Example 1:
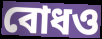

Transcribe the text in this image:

বোধও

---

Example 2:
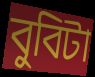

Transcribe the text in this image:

বুবিটা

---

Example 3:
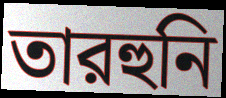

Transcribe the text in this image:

তারহুনি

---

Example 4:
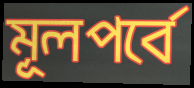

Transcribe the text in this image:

মূলপর্বে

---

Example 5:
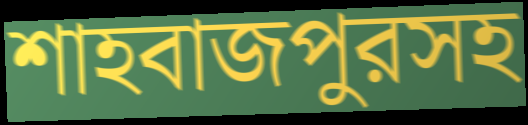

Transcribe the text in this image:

শাহবাজপুরসহ